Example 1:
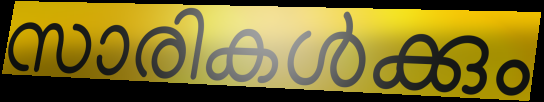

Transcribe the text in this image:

സാരികൾക്കും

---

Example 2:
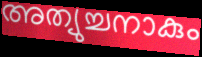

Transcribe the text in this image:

അത്യുച്ചനാകും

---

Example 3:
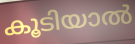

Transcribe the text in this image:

കൂടിയാൽ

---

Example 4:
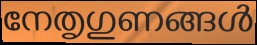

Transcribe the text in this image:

നേതൃഗുണങ്ങൾ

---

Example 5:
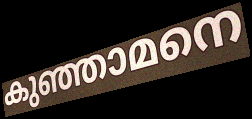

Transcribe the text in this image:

കുഞ്ഞാമനെ